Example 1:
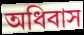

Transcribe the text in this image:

অধিবাস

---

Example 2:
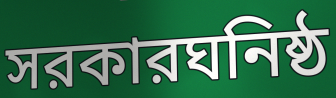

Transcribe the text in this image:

সরকারঘনিষ্ঠ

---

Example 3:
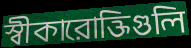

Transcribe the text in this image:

স্বীকারোক্তিগুলি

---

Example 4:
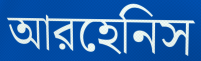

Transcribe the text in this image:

আরহেনিস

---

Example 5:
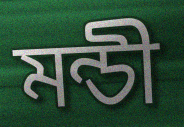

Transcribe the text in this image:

মন্ডী